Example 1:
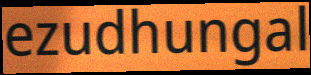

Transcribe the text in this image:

ezudhungal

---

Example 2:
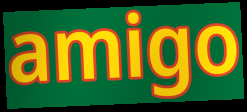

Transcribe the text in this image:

amigo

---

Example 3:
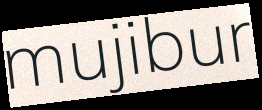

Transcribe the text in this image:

mujibur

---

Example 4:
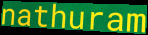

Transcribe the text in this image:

nathuram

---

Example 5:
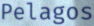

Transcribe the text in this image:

Pelagos